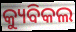
କ୍ୟୁବିକଲ